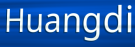
Huangdi